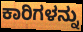
ಕಾರಿಗಳನ್ನು